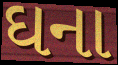
ઘના